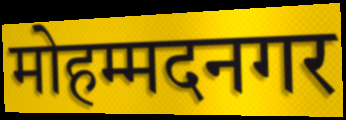
मोहम्मदनगर